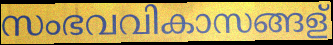
സംഭവവികാസങ്ങള്